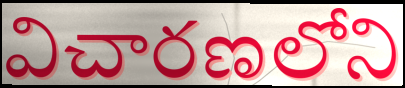
విచారణలోని